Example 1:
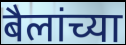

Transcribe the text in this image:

बैलांच्या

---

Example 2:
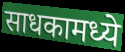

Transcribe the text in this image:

साधकामध्ये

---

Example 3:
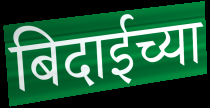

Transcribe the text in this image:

बिदाईच्या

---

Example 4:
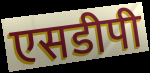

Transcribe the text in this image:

एसडीपी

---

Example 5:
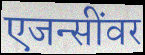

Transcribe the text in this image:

एजन्सींवर